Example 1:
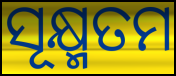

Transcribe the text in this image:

ସୂକ୍ଷ୍ମତମ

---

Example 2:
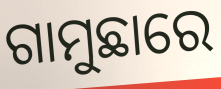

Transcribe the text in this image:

ଗାମୁଛାରେ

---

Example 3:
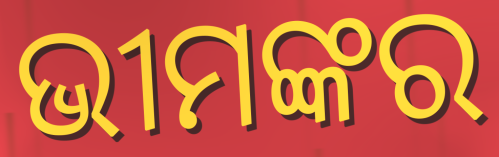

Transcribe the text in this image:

ଭୀମଙ୍କର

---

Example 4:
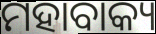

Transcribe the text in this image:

ମହାବାକ୍ୟ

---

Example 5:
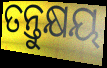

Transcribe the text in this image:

ତନ୍ତୁକ୍ଷୟ